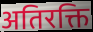
अतिरक्ति